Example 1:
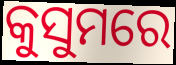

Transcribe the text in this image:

କୁସୁମରେ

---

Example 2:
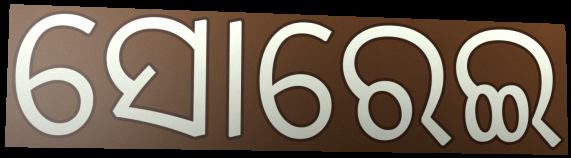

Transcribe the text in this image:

ସୋରେଇ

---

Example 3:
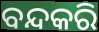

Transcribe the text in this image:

ବନ୍ଦକରି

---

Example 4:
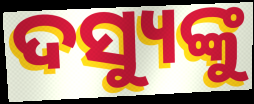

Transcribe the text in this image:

ଦସ୍ୟୁଙ୍କୁ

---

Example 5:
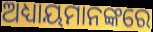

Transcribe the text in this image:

ଅଧ୍ୟାୟମାନଙ୍କରେ